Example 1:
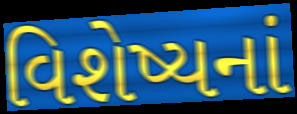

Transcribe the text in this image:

વિશેષ્યનાં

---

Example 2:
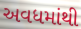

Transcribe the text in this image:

અવધમાંથી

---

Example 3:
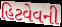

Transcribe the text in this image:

હિટવેવની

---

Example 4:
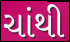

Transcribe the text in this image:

ચાંથી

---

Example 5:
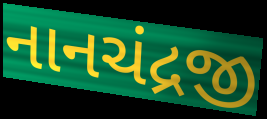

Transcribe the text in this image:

નાનચંદ્રજી